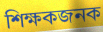
শিক্ষকজনক